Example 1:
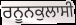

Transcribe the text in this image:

ਰਨੂਨਕੁਲਾਸੀ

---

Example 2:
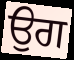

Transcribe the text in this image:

ਉਗ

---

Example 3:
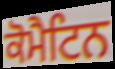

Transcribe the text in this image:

ਕੋਮੈਟਿਨ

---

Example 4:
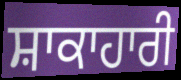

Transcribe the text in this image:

ਸ਼ਾਕਾਹਾਰੀ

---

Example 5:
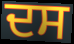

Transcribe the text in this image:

ਦਸ